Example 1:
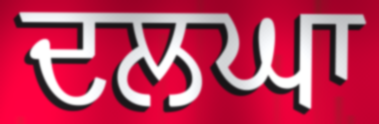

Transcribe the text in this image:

ਦਲਘਾ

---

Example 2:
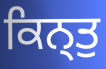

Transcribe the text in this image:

ਕਿਨ੍ਤੁ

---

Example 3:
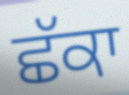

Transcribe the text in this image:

ਛੱਕਾ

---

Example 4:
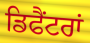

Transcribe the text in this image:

ਡਿਫੈਂਟਰਾਂ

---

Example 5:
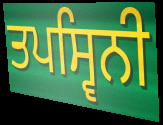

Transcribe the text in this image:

ਤਪਸ੍ਵਿਨੀ